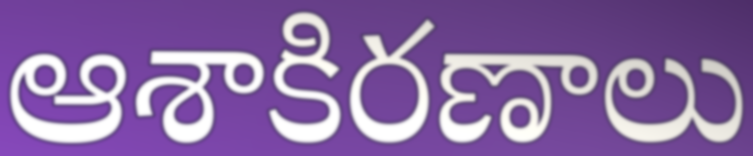
ఆశాకిరణాలు